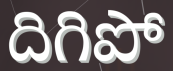
దిగిపో